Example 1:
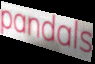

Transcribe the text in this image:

pandals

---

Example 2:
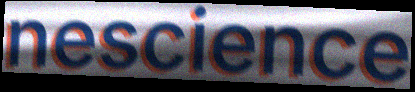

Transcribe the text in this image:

nescience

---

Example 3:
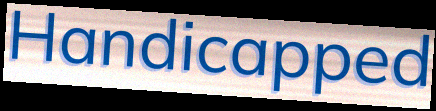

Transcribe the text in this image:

Handicapped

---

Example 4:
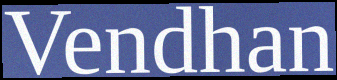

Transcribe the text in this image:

Vendhan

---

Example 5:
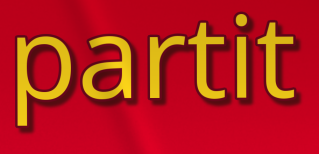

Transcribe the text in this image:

partit